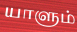
யாளும்